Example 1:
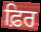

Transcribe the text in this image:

ਫ਼ਿਰ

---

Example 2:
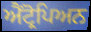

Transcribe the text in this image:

ਐਂਟ੍ਰੋਪਿਅਨ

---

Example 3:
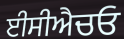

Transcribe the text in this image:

ਈਸੀਐਚਓ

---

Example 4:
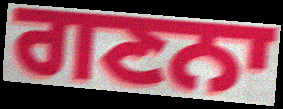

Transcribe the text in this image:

ਗਣਨਾ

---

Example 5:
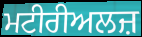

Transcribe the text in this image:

ਮਟੀਰੀਅਲਜ਼